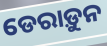
ଡେରାଡ଼ୁନ